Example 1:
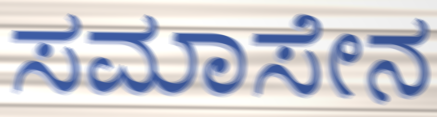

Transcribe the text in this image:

ಸಮಾಸೇನ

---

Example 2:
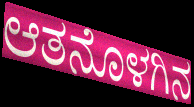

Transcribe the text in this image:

ಆತನೊಳಗಿನ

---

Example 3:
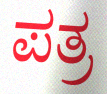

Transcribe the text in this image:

ಪತ್ರ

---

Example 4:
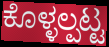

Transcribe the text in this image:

ಕೊಳ್ಳಲ್ಪಟ್ಟ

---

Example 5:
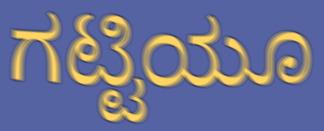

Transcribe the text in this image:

ಗಟ್ಟಿಯೂ